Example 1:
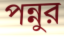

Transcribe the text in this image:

পন্নুর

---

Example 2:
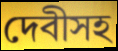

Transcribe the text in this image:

দেবীসহ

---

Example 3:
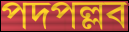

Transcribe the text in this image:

পদপল্লব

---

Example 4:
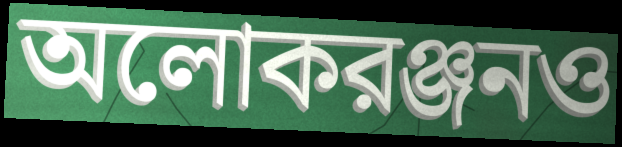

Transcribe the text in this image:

অলোকরঞ্জনও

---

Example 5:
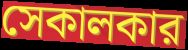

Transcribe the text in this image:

সেকালকার